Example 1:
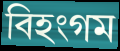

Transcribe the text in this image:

বিহংগম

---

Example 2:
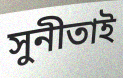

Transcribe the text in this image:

সুনীতাই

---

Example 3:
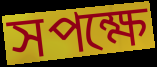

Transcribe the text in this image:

সপক্ষে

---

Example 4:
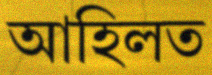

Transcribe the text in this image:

আহিলত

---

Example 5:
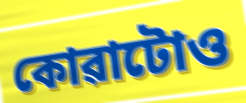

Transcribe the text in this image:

কোৱাটোও